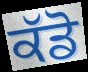
ਕੱਡੋ